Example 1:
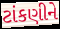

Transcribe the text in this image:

ટાંકણીને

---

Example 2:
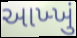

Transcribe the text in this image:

આખ્ખું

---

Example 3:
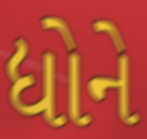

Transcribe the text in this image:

દ્યોને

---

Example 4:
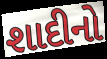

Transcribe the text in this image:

શાદીનો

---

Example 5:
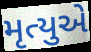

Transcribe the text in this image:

મૃત્યુએ